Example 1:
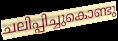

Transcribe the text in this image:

ചലിപ്പിച്ചുകൊണ്ടു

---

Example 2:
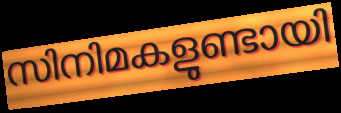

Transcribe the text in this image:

സിനിമകളുണ്ടായി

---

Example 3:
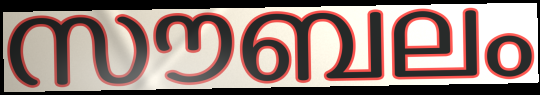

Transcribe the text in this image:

സൗബലം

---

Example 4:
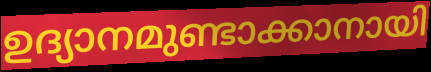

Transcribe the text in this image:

ഉദ്യാനമുണ്ടാക്കാനായി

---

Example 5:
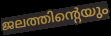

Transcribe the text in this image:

ജലത്തിന്റെയും